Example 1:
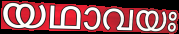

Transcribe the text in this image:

യഥാവയഃ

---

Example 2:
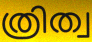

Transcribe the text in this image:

ത്രിത്വ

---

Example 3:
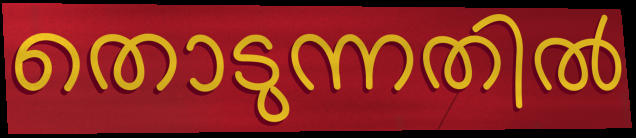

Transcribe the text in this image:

തൊടുന്നതിൽ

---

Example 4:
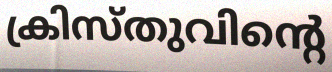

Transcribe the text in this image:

ക്രിസ്തുവിന്റെ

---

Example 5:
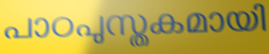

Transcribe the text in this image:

പാഠപുസ്തകമായി